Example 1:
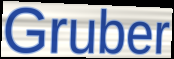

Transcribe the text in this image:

Gruber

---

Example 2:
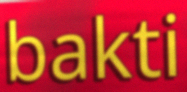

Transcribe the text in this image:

bakti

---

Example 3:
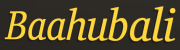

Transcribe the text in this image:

Baahubali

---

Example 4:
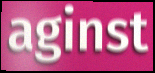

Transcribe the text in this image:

aginst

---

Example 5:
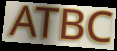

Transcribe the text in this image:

ATBC